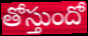
తోస్తుందో